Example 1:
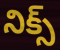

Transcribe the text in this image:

నిక్స్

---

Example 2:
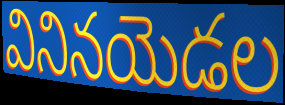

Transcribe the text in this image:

వినినయెడల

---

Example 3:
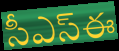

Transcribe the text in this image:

సీఎస్ఈ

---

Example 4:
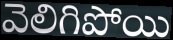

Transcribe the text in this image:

వెలిగిపోయి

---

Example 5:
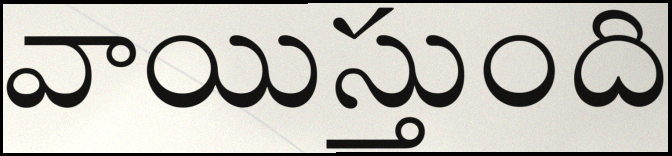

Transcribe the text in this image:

వాయిస్తుంది